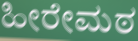
ಹೀರೇಮಠ